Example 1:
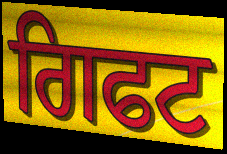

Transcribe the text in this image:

ਗਿਫਟ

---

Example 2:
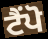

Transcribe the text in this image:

ਟੈਂਪੋ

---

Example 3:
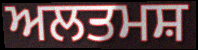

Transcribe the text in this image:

ਅਲਤਮਸ਼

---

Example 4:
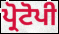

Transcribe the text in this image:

ਪ੍ਰੋਟੋਪੀ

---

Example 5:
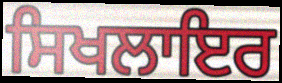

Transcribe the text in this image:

ਸਿਖਲਾਇਰ